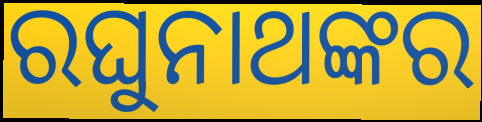
ରଘୁନାଥଙ୍କର